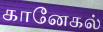
கானேகல்